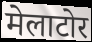
मेलाटोर